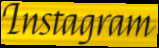
Instagram